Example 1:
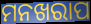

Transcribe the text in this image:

ମନଖରାପ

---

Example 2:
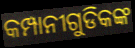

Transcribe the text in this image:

କମ୍ପାନୀଗୁଡିକଙ୍କ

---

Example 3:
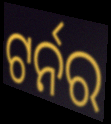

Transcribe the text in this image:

ଟର୍ନର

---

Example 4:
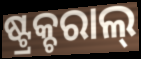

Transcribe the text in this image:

ଷ୍ଟ୍ରକ୍ଚରାଲ୍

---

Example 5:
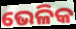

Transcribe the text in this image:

ଭେଳିକ